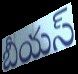
బీయస్